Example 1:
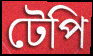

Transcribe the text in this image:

টেপি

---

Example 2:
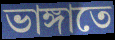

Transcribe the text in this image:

ভাঙ্গাতে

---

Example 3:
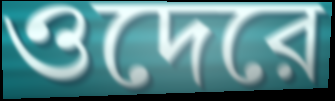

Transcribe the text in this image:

ওদেরে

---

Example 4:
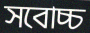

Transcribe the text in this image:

সবোচ্চ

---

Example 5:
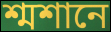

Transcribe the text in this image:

শ্মশানে